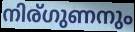
നിര്ഗുണനും